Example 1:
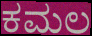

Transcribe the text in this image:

ಕಮಲ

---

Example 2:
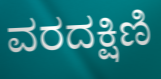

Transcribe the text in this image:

ವರದಕ್ಷಿಣಿ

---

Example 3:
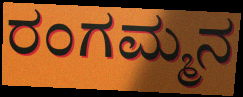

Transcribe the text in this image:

ರಂಗಮ್ಮನ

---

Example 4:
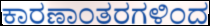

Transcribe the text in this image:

ಕಾರಣಾಂತರಗಳಿಂದ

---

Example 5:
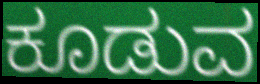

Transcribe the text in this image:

ಕೂಡುವ